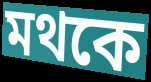
মথকে